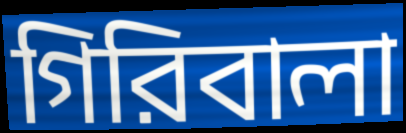
গিরিবালা